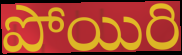
పోయిరి